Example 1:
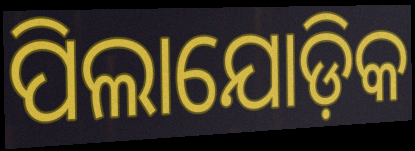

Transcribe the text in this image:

ପିଲାଯୋଡ଼ିକ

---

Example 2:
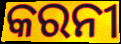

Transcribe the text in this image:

କରନୀ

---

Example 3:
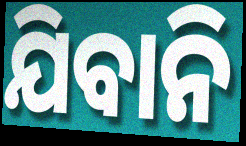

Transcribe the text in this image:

ଯିବାନି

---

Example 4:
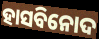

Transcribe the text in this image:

ହାସବିନୋଦ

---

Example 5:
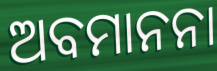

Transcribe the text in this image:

ଅବମାନନା